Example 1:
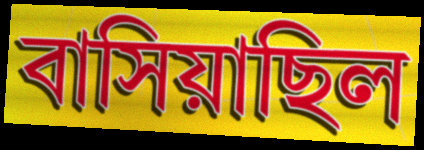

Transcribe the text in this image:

বাসিয়াছিল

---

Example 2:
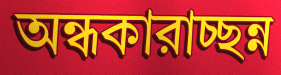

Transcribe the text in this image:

অন্ধকারাচ্ছন্ন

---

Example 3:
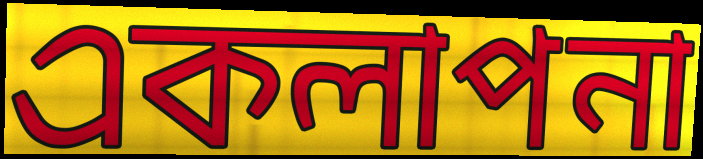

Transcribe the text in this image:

একলাপনা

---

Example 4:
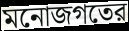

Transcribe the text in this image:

মনোজগতের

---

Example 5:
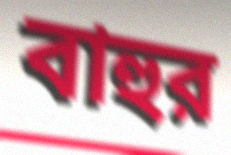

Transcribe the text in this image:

বাহুর